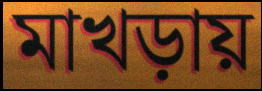
মাখড়ায়